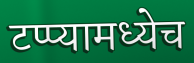
टप्प्यामध्येच